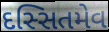
દસ્સિતમેવ